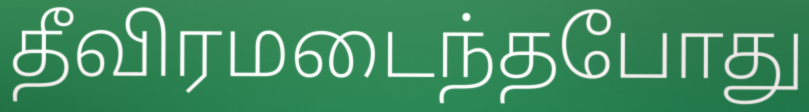
தீவிரமடைந்தபோது